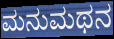
ಮನುಮಥನ